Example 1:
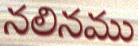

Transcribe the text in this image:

నలినము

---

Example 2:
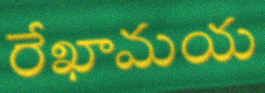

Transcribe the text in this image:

రేఖామయ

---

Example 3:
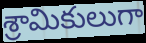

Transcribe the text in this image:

శ్రామికులుగా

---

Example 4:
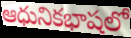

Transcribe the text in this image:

ఆధునికభాషలో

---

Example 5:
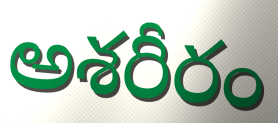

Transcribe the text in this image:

అశరీరం